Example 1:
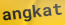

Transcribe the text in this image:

angkat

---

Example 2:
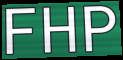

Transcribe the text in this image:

FHP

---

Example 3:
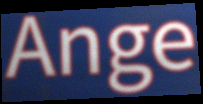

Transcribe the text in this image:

Ange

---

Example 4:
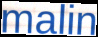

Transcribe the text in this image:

malin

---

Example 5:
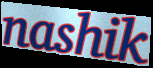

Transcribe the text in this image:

nashik